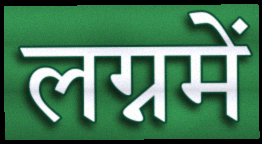
लग्नमें